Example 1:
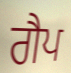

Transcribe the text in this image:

ਗੈਪ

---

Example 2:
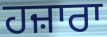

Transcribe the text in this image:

ਹਜ਼ਾਰਾ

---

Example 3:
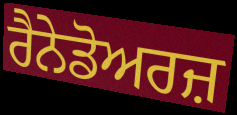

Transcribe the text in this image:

ਰੈਨੇਡੋਅਰਜ਼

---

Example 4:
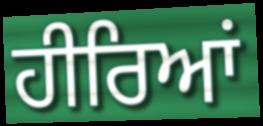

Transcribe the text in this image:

ਹੀਰਿਆਂ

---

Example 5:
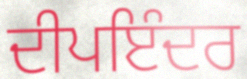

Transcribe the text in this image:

ਦੀਪਇੰਦਰ